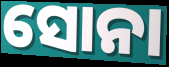
ସୋନା